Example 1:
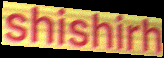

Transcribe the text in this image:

shishirh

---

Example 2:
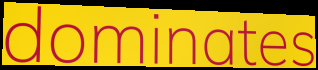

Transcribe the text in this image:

dominates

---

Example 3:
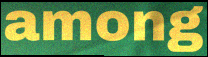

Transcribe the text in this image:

among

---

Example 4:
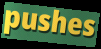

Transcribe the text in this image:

pushes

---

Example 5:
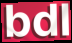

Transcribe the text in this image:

bdl